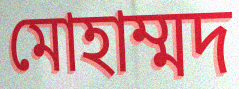
মোহাম্মদ